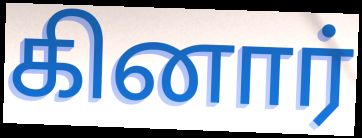
கினார்